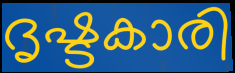
ദൃഷ്ടകാരി